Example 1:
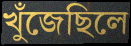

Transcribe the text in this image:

খুঁজেছিলে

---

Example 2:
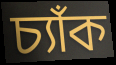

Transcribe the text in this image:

চ্যাঁক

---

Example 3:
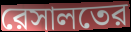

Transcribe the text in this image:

রেসালতের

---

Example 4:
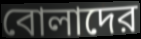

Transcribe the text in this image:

বোলাদের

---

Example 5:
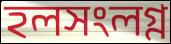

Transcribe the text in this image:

হলসংলগ্ন